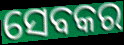
ସେବକର